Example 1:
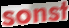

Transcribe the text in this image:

sonst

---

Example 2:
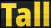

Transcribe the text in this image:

Tall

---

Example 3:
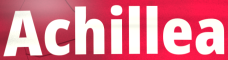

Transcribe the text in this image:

Achillea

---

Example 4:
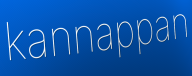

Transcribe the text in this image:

kannappan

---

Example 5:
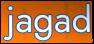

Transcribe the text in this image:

jagad